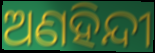
ଅଣହିନ୍ଦୀ